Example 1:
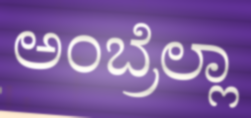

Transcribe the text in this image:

ಅಂಬ್ರೆಲ್ಲಾ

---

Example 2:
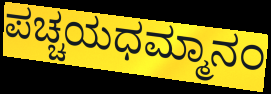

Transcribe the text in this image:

ಪಚ್ಚಯಧಮ್ಮಾನಂ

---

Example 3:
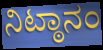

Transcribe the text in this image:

ನಿಟ್ಠಾನಂ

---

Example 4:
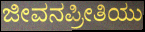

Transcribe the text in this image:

ಜೀವನಪ್ರೀತಿಯು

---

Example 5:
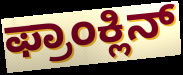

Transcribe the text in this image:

ಫ್ರಾಂಕ್ಲಿನ್